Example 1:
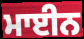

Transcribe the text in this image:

ਮਾਈਨ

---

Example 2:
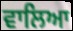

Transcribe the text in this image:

ਵਾਲਿਆ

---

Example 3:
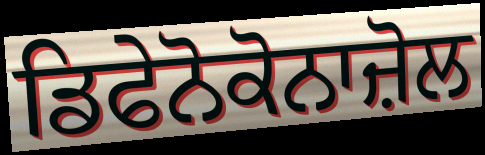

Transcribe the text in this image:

ਡਿਫੇਨੋਕੋਨਾਜ਼ੋਲ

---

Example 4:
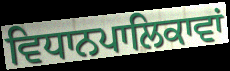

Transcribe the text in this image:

ਵਿਧਾਨਪਾਲਿਕਾਵਾਂ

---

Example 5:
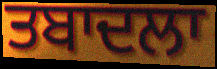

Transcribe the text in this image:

ਤਬਾਦਲਾ